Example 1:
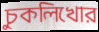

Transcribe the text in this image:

চুকলিখোর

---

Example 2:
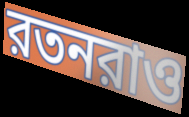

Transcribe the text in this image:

রতনরাও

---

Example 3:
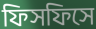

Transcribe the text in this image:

ফিসফিসে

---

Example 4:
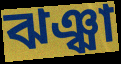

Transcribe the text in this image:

ঝঞ্ঝা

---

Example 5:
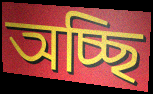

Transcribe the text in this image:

অচ্ছি